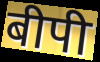
बीपी